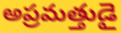
అప్రమత్తుడై